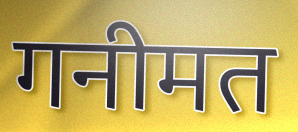
गनीमत